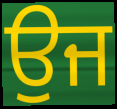
ਉਜ